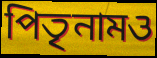
পিতৃনামও